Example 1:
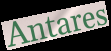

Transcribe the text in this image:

Antares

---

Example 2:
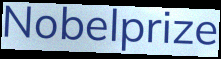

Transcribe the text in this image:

Nobelprize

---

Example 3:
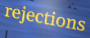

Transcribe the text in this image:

rejections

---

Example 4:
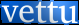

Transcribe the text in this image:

vettu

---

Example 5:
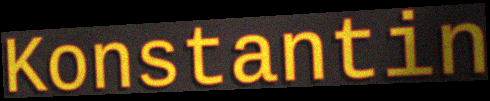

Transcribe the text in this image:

Konstantin